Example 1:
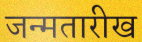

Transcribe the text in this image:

जन्मतारीख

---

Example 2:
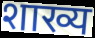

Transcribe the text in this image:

शाख्य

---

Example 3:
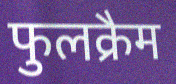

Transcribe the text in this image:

फुलक्रैम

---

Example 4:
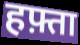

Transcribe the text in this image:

हफ़्ता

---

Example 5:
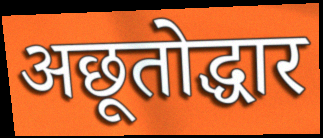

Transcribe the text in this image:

अछूतोद्धार